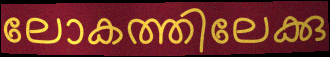
ലോകത്തിലേക്കു